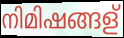
നിമിഷങ്ങള്